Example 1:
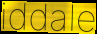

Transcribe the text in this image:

iddale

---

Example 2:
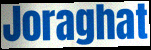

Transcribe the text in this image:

Joraghat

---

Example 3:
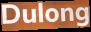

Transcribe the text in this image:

Dulong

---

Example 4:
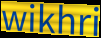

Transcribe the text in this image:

wikhri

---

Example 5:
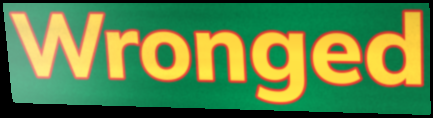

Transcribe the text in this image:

Wronged